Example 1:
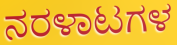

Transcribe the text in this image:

ನರಳಾಟಗಳ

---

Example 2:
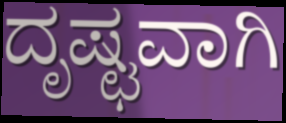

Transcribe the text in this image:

ದೃಷ್ಟವಾಗಿ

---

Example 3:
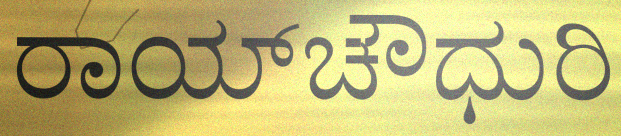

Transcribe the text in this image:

ರಾಯ್‌ಚೌಧುರಿ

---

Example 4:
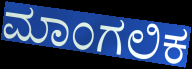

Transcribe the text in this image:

ಮಾಂಗಲಿಕ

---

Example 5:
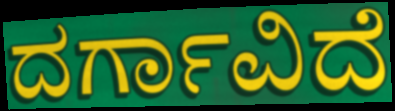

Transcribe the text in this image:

ದರ್ಗಾವಿದೆ